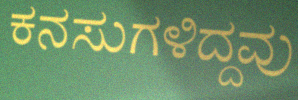
ಕನಸುಗಳಿದ್ದವು